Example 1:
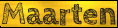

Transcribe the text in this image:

Maarten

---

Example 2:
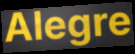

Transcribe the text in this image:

Alegre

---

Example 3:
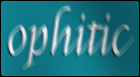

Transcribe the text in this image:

ophitic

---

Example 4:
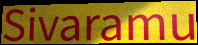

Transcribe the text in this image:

Sivaramu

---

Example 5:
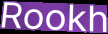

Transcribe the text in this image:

Rookh